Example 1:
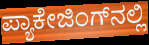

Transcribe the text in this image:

ಪ್ಯಾಕೇಜಿಂಗ್‌ನಲ್ಲಿ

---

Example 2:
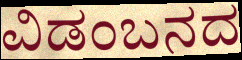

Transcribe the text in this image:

ವಿಡಂಬನದ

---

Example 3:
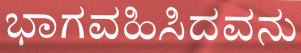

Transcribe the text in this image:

ಭಾಗವಹಿಸಿದವನು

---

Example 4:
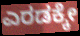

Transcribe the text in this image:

ಎರಡಕ್ಕೇ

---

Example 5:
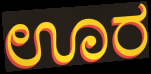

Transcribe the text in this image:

ಊರ